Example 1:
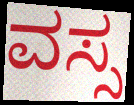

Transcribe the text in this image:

ವಸ್ಸ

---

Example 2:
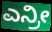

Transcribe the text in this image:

ಎನ್ರೀ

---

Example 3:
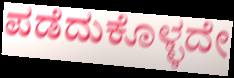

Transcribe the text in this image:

ಪಡೆದುಕೊಳ್ಳದೇ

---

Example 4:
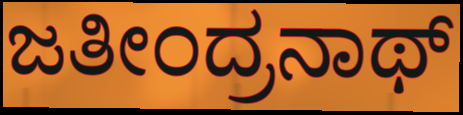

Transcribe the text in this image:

ಜತೀಂದ್ರನಾಥ್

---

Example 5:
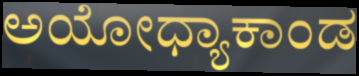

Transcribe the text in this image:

ಅಯೋಧ್ಯಾಕಾಂಡ